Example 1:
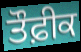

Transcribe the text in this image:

ਤੌਫ਼ੀਕ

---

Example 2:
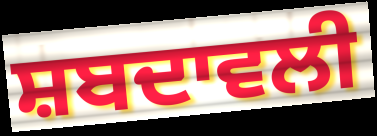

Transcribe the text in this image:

ਸ਼ਬਦਾਵਲੀ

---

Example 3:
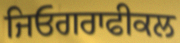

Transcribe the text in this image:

ਜਿਓਗਰਾਫੀਕਲ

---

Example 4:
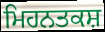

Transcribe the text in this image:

ਮਿਹਨਤਕਸ਼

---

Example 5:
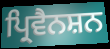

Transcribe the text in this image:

ਪ੍ਰਿਵੈਨਸ਼ਨ